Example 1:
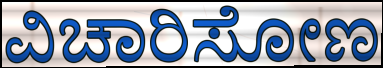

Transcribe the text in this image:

ವಿಚಾರಿಸೋಣ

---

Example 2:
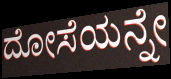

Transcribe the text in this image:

ದೋಸೆಯನ್ನೇ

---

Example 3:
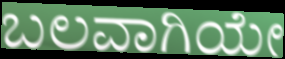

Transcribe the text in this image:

ಬಲವಾಗಿಯೇ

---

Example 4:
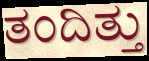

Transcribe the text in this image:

ತಂದಿತ್ತು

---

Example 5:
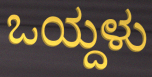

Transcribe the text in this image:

ಒಯ್ದಳು